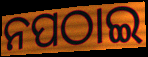
ନପଠାଇ